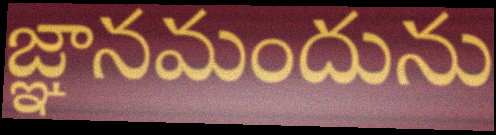
జ్ఞానమందును